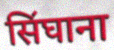
सिंघाना